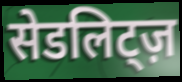
सेडलिट्ज़